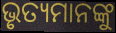
ଭୃତ୍ୟମାନଙ୍କୁ